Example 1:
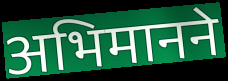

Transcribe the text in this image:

अभिमानने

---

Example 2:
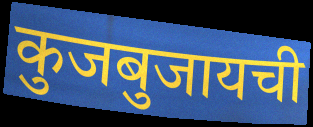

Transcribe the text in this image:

कुजबुजायची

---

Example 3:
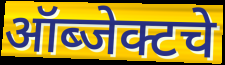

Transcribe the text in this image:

ऑब्जेक्टचे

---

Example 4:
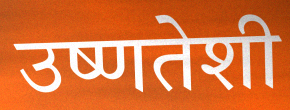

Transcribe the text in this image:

उष्णतेशी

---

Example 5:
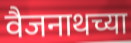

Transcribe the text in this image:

वैजनाथच्या